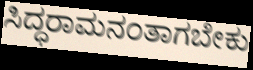
ಸಿದ್ಧರಾಮನಂತಾಗಬೇಕು